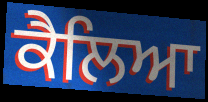
ਕੈਲਿਆ